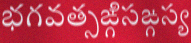
భగవత్సఙ్గిసఙ్గస్య